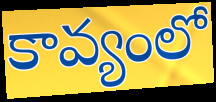
కావ్యంలో